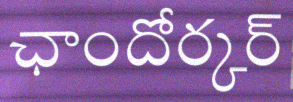
ఛాందోర్కర్